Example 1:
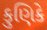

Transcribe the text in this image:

કુણિકે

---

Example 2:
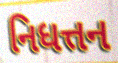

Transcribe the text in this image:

નિધત્તન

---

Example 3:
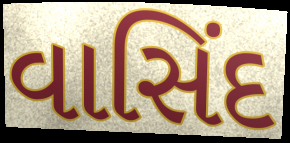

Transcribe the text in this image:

વાસિંદ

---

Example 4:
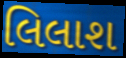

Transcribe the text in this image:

લિલાશ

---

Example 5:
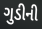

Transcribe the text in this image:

ગુડીની